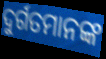
ଦୁର୍ଗତମାନଙ୍କ